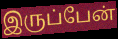
இருப்பேன்